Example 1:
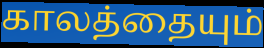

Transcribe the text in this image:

காலத்தையும்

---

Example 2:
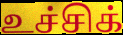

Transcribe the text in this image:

உச்சிக்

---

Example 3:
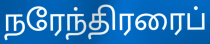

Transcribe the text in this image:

நரேந்திரரைப்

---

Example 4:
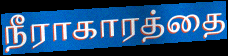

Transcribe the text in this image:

நீராகாரத்தை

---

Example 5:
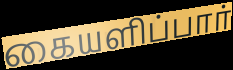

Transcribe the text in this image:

கையளிப்பார்